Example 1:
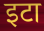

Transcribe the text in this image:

इटा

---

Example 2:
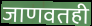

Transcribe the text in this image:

जाणवतही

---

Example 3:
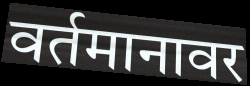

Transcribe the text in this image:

वर्तमानावर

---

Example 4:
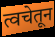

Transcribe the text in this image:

त्वचेतून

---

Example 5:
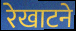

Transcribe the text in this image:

रेखाटने